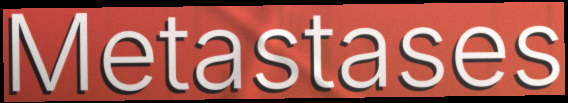
Metastases